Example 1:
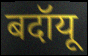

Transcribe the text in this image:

बदॉयू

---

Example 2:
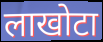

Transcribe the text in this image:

लाखोटा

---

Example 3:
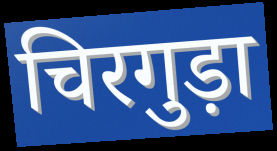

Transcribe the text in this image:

चिरगुड़ा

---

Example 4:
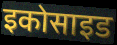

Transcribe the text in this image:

इकोसाइड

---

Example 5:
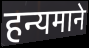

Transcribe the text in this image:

हन्यमाने